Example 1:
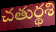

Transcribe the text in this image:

చతుర్థశి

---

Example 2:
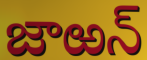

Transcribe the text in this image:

జాఱన్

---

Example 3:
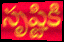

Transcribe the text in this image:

సృష్టికి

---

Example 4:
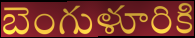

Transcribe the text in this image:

బెంగుళూరికి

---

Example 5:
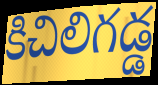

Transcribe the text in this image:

కిచిలిగడ్డ